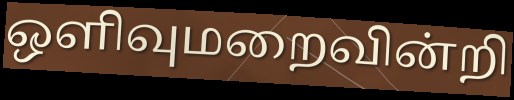
ஒளிவுமறைவின்றி